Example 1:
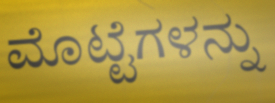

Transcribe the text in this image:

ಮೊಟ್ಟೆಗಳನ್ನು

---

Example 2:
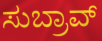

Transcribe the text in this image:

ಸುಬ್ರಾವ್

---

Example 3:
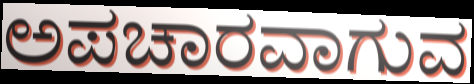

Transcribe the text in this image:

ಅಪಚಾರವಾಗುವ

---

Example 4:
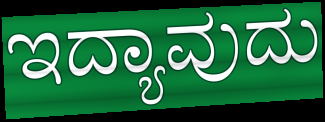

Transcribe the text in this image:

ಇದ್ಯಾವುದು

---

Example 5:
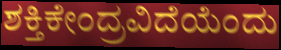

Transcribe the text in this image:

ಶಕ್ತಿಕೇಂದ್ರವಿದೆಯೆಂದು